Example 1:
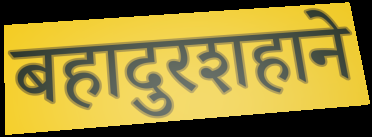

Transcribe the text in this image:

बहादुरशहाने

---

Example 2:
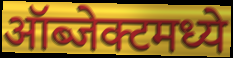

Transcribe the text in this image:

ऑब्जेक्टमध्ये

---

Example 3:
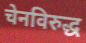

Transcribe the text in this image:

चेनविरुद्ध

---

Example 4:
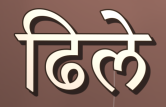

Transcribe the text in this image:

ढिले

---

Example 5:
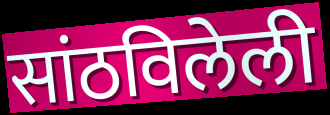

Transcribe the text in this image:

सांठविलेली